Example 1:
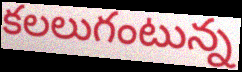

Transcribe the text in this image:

కలలుగంటున్న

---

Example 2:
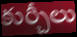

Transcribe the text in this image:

కుర్చీలు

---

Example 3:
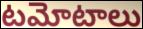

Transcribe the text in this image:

టమోటాలు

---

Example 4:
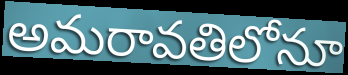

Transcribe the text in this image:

అమరావతిలోనూ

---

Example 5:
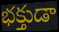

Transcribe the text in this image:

భక్తుడా